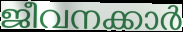
ജീവനക്കാർ